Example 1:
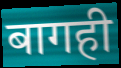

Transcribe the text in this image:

बागही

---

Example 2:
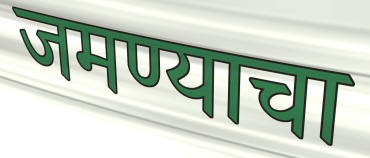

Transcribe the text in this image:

जमण्याचा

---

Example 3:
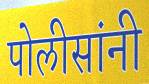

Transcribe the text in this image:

पोलीसांनी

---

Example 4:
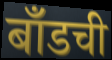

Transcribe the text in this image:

बाँडची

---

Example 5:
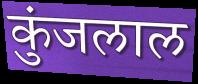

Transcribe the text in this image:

कुंजलाल